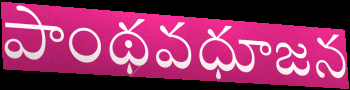
పాంథవధూజన